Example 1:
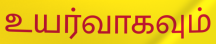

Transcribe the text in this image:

உயர்வாகவும்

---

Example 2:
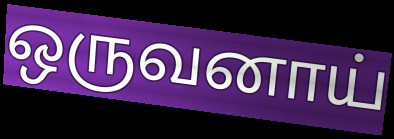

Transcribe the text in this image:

ஒருவனாய்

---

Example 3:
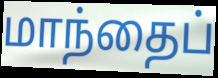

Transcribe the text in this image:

மாந்தைப்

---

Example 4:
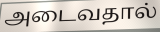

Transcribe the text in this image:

அடைவதால்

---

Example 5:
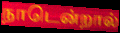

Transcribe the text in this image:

நாடென்றால்